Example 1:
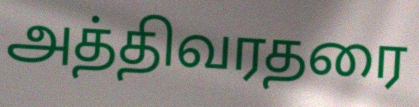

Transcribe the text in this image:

அத்திவரதரை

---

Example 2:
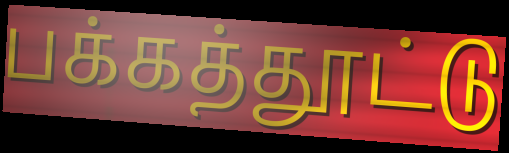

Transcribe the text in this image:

பக்கத்தூட்டு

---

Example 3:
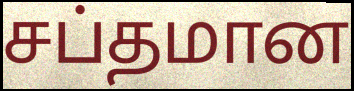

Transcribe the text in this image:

சப்தமான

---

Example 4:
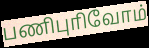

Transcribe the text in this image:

பணிபுரிவோம்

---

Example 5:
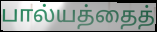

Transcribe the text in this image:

பால்யத்தைத்